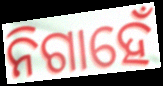
ନିଗାହେଁ